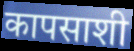
कापसाशी